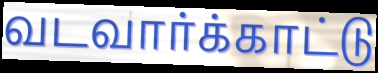
வடவார்க்காட்டு